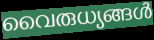
വൈരുധ്യങ്ങൾ